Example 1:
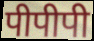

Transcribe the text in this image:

पीपीपी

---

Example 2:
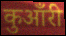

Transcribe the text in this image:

कुआँरी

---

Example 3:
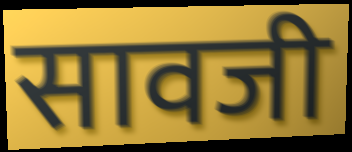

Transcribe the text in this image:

सावजी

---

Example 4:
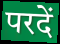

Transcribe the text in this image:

परदें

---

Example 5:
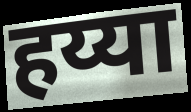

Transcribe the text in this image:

हय्या